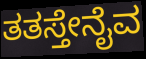
ತತಸ್ತೇನೈವ